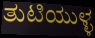
ತುಟಿಯುಳ್ಳ